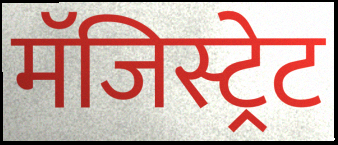
मॅजिस्ट्रेट